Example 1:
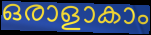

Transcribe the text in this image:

ഒരാളാകാം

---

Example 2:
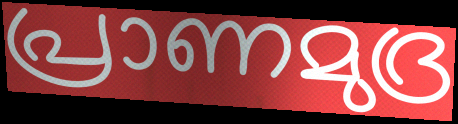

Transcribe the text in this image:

പ്രാണമുദ്ര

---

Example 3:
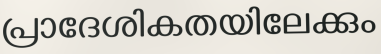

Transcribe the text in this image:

പ്രാദേശികതയിലേക്കും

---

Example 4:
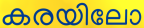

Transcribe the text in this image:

കരയിലോ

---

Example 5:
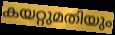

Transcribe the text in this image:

കയറ്റുമതിയും